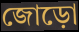
জোড়ো